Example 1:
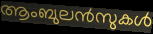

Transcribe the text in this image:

ആംബുലൻസുകൾ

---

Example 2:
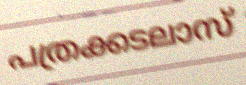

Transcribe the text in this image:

പത്രക്കടലാസ്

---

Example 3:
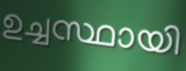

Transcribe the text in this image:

ഉച്ചസ്ഥായി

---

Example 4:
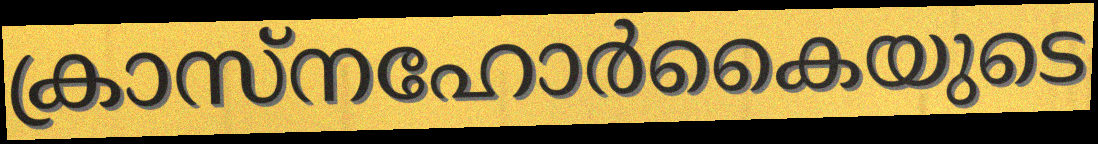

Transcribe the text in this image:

ക്രാസ്നഹോർകൈയുടെ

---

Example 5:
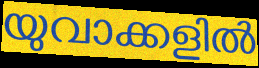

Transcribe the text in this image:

യുവാക്കളിൽ